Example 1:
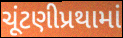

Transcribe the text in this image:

ચૂંટણીપ્રથામાં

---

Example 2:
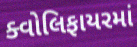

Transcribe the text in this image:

ક્વોલિફાયરમાં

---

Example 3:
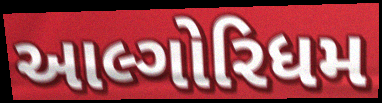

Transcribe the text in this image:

આલ્ગોરિધમ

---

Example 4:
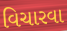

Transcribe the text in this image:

વિચારવા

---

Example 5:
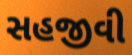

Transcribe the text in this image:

સહજીવી